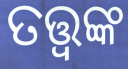
ତତ୍ତ୍ବଙ୍କ